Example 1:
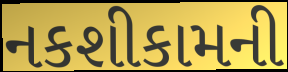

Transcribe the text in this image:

નકશીકામની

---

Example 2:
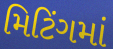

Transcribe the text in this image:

મિટિંગમાં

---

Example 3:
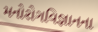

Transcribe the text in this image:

મનોરોગવિજ્ઞાનના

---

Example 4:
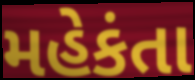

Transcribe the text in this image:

મહેકંતા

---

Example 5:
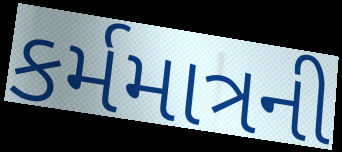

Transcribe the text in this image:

કર્મમાત્રની